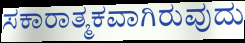
ಸಕಾರಾತ್ಮಕವಾಗಿರುವುದು